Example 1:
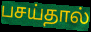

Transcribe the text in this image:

பசய்தால்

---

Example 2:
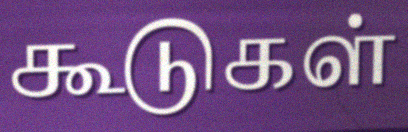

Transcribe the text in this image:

கூடுகள்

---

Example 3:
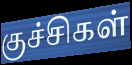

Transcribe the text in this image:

குச்சிகள்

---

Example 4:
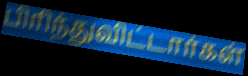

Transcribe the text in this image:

பிரிந்துவிட்டார்கள்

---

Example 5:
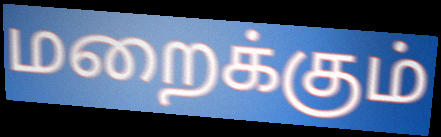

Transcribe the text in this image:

மறைக்கும்